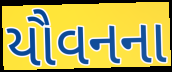
યૌવનના